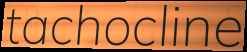
tachocline